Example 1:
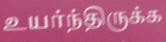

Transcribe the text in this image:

உயர்ந்திருக்க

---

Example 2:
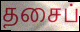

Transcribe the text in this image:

தசைப்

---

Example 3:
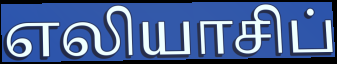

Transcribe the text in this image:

எலியாசிப்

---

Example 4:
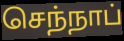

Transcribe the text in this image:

செந்நாப்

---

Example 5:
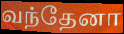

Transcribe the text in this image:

வந்தேனா